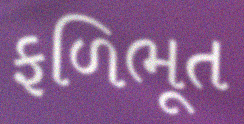
ફળિભૂત